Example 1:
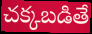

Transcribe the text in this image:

చక్కబడితే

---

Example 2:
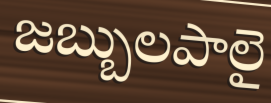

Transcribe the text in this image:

జబ్బులపాలై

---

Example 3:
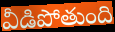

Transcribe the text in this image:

వీడిపోతుంది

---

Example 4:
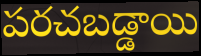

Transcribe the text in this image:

పరచబడ్డాయి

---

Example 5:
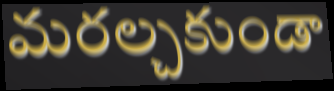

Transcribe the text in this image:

మరల్చకుండా